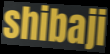
shibaji